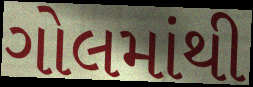
ગોલમાંથી